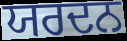
ਯਰਦਨ